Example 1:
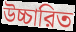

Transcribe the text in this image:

উচ্চারিত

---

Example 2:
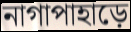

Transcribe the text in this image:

নাগাপাহাড়ে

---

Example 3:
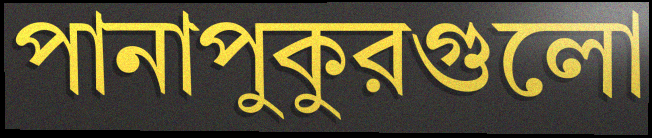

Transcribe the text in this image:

পানাপুকুরগুলো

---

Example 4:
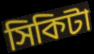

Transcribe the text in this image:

সিকিটা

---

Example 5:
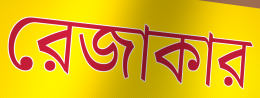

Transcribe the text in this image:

রেজাকার